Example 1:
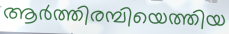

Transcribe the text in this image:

ആർത്തിരമ്പിയെത്തിയ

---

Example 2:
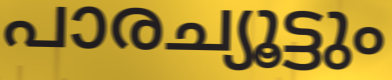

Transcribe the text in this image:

പാരച്യൂട്ടും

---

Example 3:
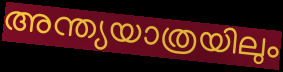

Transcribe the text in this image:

അന്ത്യയാത്രയിലും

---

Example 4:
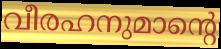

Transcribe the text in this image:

വീരഹനുമാന്റെ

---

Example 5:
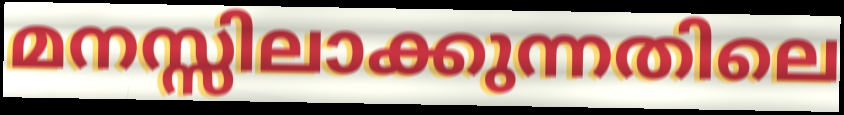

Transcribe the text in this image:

മനസ്സിലാക്കുന്നതിലെ